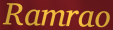
Ramrao